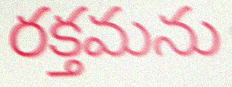
రక్తమను